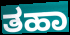
ತಹಾ